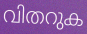
വിതറുക